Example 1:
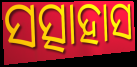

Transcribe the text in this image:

ସତ୍ସାହାସ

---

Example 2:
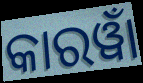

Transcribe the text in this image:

କାରୱାଁ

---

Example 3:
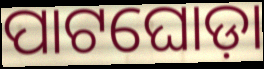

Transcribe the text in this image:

ପାଟଘୋଡ଼ା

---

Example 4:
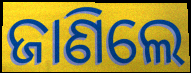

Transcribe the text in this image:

ଜାଣିଲେ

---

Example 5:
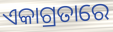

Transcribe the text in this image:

ଏକାଗ୍ରତାରେ